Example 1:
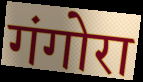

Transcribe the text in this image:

गंगोरा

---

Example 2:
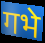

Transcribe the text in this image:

गभे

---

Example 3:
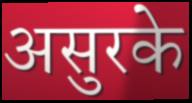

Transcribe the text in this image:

असुरके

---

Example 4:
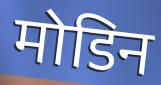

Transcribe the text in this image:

मोडिन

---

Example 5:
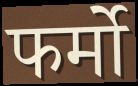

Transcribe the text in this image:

फर्मो